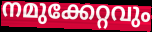
നമുക്കേറ്റവും